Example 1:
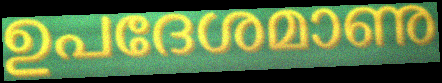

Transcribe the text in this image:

ഉപദേശമാണു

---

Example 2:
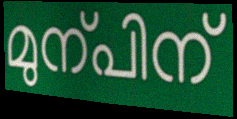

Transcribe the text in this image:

മുന്പിന്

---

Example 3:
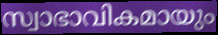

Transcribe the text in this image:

സ്വാഭാവികമായും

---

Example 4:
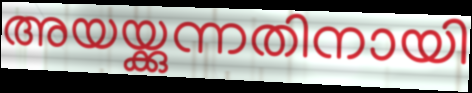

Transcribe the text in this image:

അയയ്ക്കുന്നതിനായി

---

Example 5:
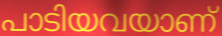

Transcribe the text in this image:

പാടിയവയാണ്